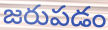
జరుపడం